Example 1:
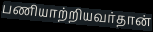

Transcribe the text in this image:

பணியாற்றியவர்தான்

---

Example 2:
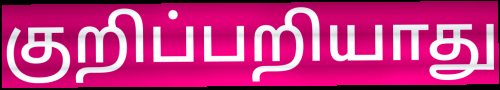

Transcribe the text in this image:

குறிப்பறியாது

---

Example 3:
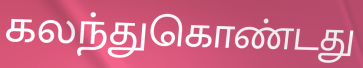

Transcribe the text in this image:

கலந்துகொண்டது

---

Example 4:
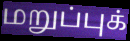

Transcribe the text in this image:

மறுப்புக்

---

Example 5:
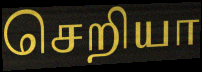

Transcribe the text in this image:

செறியா